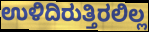
ಉಳಿದಿರುತ್ತಿರಲಿಲ್ಲ